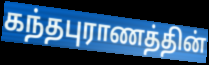
கந்தபுராணத்தின்